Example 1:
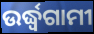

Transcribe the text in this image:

ଉର୍ଦ୍ଧ୍ୱଗାମୀ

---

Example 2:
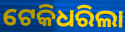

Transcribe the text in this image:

ଟେକିଧରିଲା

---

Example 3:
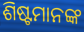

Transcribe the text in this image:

ଶିଷ୍ଟମାନଙ୍କ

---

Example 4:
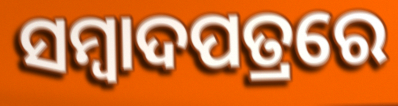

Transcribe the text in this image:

ସମ୍ୱାଦପତ୍ରରେ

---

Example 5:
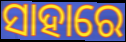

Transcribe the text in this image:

ସାହାରେ